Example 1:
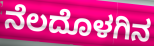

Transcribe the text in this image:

ನೆಲದೊಳಗಿನ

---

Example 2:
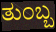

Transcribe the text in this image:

ತುಂಬ್ಬ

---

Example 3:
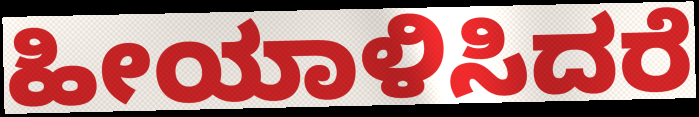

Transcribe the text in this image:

ಹೀಯಾಳಿಸಿದರೆ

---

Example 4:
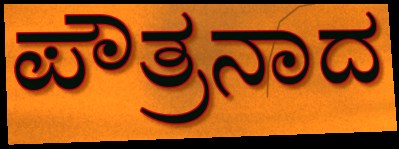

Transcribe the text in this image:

ಪೌತ್ರನಾದ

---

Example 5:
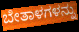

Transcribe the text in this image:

ಬೇತಾಳಗಳನ್ನು